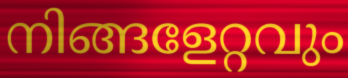
നിങ്ങളേറ്റവും